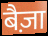
बैज़ा